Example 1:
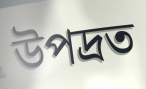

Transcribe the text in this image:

উপদ্রত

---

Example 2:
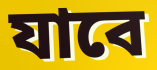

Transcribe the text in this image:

যাবে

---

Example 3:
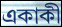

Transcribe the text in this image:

একাকী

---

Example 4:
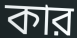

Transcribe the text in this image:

কার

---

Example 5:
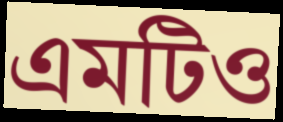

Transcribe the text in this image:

এমটিও